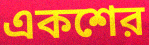
একশের